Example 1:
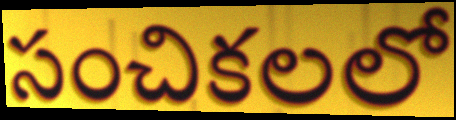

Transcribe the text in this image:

సంచికలలో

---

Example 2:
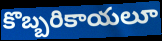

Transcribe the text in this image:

కొబ్బరికాయలూ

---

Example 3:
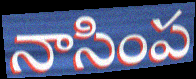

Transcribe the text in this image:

నాసింప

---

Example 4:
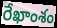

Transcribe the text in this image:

రేఖాంశం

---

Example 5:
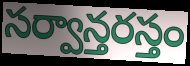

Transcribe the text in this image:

సర్వాన్తరస్తం